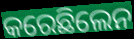
କରେଛିଲେନ